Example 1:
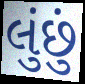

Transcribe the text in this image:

લુંછું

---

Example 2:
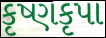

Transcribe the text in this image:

કૃષ્ણકૃપા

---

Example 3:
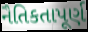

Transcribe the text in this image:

નૈતિકતાપૂર્ણ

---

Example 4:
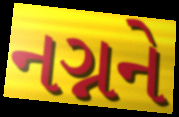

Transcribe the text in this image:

નગ્નને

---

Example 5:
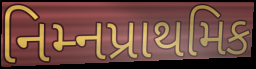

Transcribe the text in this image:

નિમ્નપ્રાથમિક